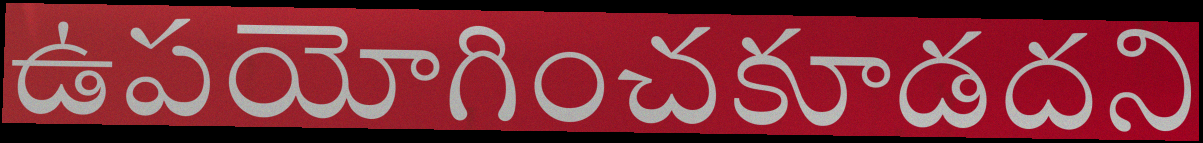
ఉపయోగించకూడదని